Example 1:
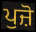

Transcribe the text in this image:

ਪੁਜ਼ੋ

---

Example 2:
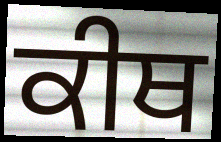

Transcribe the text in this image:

ਕੀਥ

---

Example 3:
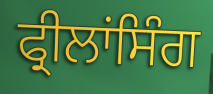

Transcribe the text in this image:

ਫ੍ਰੀਲਾਂਸਿੰਗ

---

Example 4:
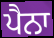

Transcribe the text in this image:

ਪੈਨਾ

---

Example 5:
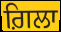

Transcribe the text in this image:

ਗ਼ਿਲਾ